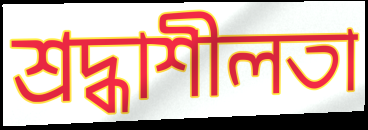
শ্রদ্ধাশীলতা